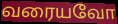
வரையவோ